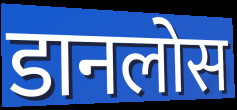
डानलोस